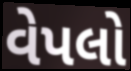
વેપલો